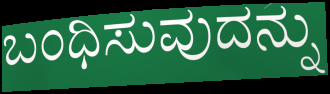
ಬಂಧಿಸುವುದನ್ನು